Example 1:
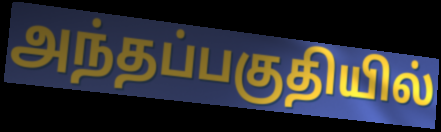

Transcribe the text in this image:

அந்தப்பகுதியில்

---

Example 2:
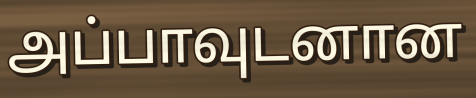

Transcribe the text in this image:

அப்பாவுடனான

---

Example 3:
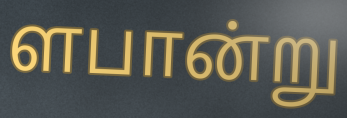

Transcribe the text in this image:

ளபான்று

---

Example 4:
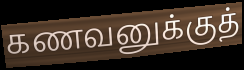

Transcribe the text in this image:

கணவனுக்குத்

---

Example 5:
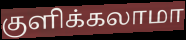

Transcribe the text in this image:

குளிக்கலாமா